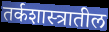
तर्कशास्त्रातील